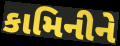
કામિનીને